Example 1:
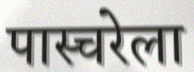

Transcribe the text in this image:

पास्चरेला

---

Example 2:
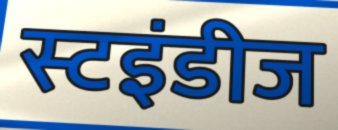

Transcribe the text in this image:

स्टइंडीज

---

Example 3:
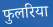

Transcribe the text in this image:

फुलरिया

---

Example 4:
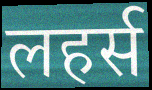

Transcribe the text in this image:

लहर्स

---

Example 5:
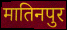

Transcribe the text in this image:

मातिनपुर